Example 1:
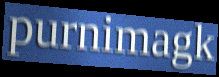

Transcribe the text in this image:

purnimagk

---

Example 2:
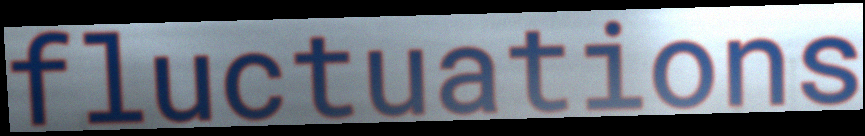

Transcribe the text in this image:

fluctuations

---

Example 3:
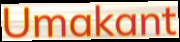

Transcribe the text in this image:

Umakant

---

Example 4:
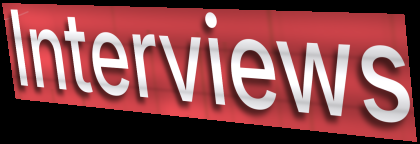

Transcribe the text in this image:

Interviews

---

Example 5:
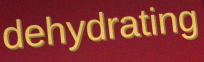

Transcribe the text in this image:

dehydrating